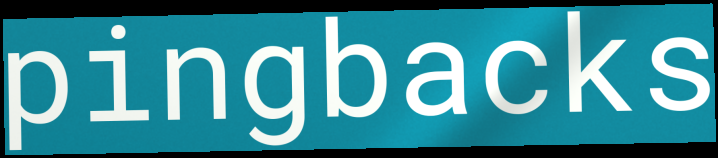
pingbacks